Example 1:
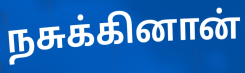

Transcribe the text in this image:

நசுக்கினான்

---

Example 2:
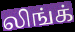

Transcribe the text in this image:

லிங்க்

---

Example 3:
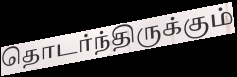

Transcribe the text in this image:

தொடர்ந்திருக்கும்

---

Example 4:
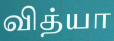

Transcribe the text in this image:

வித்யா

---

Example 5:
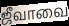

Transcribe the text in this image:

ஜீவாவை